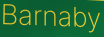
Barnaby